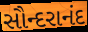
સૌન્દરાનંદ